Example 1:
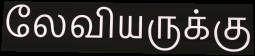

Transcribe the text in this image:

லேவியருக்கு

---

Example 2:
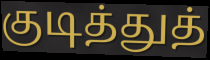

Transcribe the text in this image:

குடித்துத்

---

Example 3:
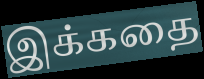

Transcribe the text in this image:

இக்கதை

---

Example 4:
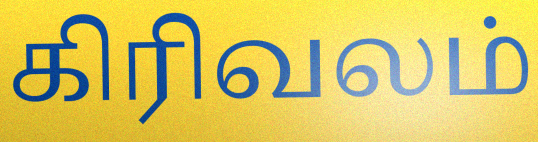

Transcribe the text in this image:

கிரிவலம்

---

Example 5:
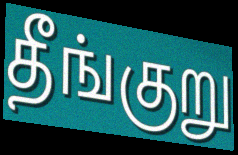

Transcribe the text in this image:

தீங்குறு